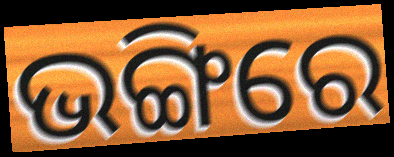
ଭଙ୍ଗିରେ